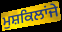
ਮੁਸ਼ਕਿਲਾਂਜੇ